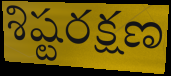
శిష్టరక్షణ